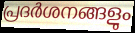
പ്രദർശനങ്ങളും